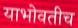
याभोवतीच